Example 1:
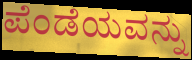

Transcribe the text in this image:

ಪೆಂಡೆಯವನ್ನು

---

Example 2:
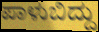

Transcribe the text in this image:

ಪಾಳುಬಿದ್ದು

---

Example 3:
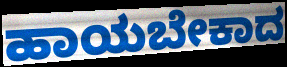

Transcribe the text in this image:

ಹಾಯಬೇಕಾದ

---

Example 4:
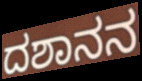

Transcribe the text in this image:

ದಶಾನನ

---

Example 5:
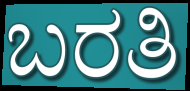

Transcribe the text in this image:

ಬರತಿ